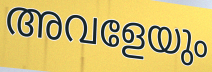
അവളേയും